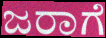
ಜರಾಗೆ